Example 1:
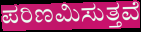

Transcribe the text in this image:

ಪರಿಣಮಿಸುತ್ತವೆ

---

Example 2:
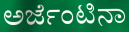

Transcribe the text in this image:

ಅರ್ಜೆಂಟಿನಾ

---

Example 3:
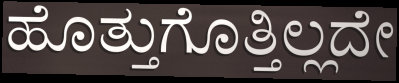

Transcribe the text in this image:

ಹೊತ್ತುಗೊತ್ತಿಲ್ಲದೇ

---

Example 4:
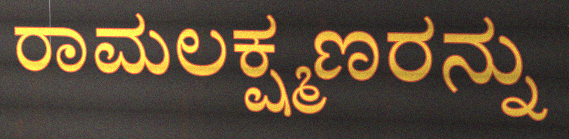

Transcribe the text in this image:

ರಾಮಲಕ್ಷ್ಮಣರನ್ನು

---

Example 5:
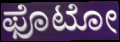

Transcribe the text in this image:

ಫೊಟೋ